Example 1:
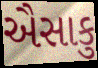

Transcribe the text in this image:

ઐસાકુ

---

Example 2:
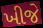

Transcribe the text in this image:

ખીજે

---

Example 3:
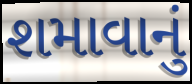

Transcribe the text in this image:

શમાવાનું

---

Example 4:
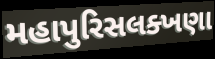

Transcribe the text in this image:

મહાપુરિસલક્ખણા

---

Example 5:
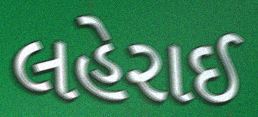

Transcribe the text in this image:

લહેરાઈ